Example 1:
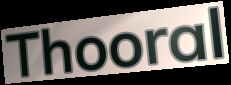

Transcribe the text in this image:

Thooral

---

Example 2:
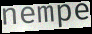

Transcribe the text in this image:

nempe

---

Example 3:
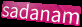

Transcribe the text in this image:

sadanam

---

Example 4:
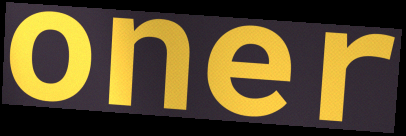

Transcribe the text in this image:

oner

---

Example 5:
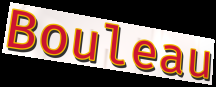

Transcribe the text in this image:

Bouleau